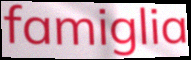
famiglia